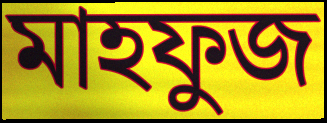
মাহফুজ